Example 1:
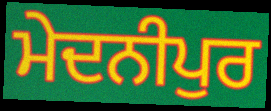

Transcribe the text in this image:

ਮੇਦਨੀਪੁਰ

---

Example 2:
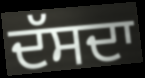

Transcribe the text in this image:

ਦੱਸਦਾ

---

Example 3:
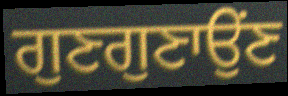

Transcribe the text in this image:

ਗੁਣਗੁਣਾਉਂਣ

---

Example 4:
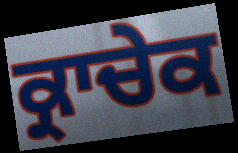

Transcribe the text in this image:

ਕ੍ਰਾਚੇਕ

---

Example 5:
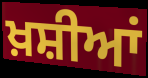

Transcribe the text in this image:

ਖ਼ਸ਼ੀਆਂ